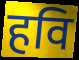
हवि